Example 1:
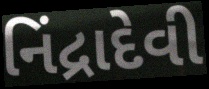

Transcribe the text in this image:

નિંદ્રાદેવી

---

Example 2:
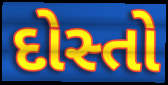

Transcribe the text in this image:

દોસ્તો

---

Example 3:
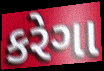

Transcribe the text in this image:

કરેગા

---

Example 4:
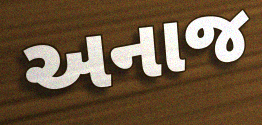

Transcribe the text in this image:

અનાજ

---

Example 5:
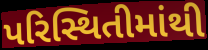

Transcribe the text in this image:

પરિસ્થિતીમાંથી